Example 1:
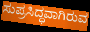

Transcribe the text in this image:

ಸುಪ್ರಸಿದ್ಧವಾಗಿರುವ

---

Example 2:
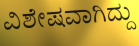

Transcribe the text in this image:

ವಿಶೇಷವಾಗಿದ್ದು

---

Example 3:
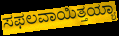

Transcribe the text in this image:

ಸಫಲವಾಯಿತ್ತಯ್ಯಾ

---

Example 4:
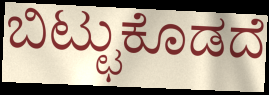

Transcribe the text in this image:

ಬಿಟ್ಟುಕೊಡದೆ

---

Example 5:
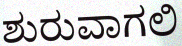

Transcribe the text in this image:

ಶುರುವಾಗಲಿ